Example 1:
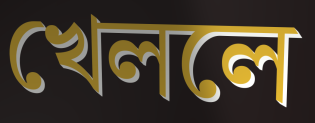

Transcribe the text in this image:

খেললে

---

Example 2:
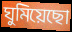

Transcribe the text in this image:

ঘুমিয়েছো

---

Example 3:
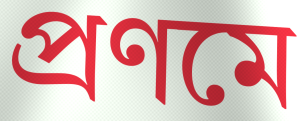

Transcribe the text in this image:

প্রণমে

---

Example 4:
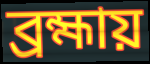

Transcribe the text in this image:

ব্রহ্মায়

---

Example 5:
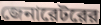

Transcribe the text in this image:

জেনারেটরের